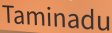
Taminadu